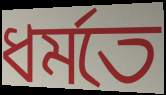
ধৰ্মতে